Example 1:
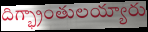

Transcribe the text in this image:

దిగ్భ్రాంతులయ్యారు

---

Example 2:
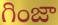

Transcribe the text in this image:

గింజా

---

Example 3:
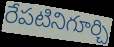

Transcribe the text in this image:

రేపటినిగూర్చి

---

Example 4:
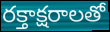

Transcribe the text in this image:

రక్తాక్షరాలతో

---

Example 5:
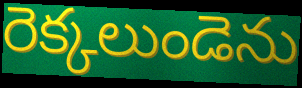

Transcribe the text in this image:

రెక్కలుండెను